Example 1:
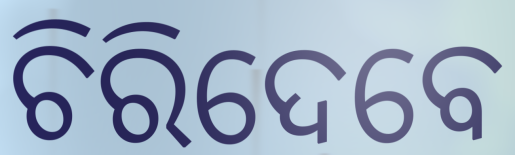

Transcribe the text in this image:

ଚିରିଦେବେ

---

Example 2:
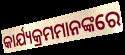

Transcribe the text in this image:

କାର୍ଯ୍ୟକ୍ରମମାନଙ୍କରେ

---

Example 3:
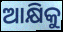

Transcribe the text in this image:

ଆକ୍ଷିକୁ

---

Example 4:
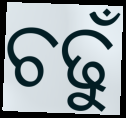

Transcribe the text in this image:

ଚଢୁଁ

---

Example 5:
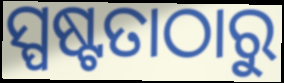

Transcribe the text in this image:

ସ୍ପଷ୍ଟତାଠାରୁ